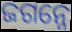
ଜଗନ୍ନେ